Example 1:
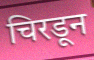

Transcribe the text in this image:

चिरडून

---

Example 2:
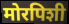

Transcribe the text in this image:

मोरपिशी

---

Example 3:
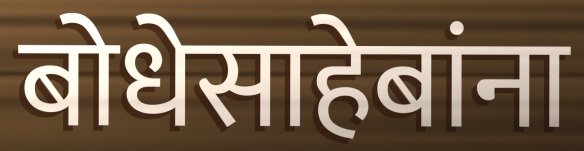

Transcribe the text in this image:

बोधेसाहेबांना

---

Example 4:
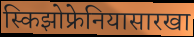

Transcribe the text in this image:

स्किझोफ्रेनियासारखा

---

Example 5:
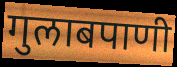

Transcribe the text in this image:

गुलाबपाणी